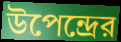
উপেন্দ্রের